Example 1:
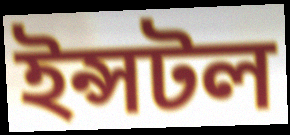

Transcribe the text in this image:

ইন্সটল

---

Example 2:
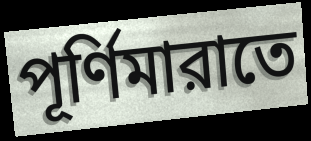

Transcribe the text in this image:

পূর্ণিমারাতে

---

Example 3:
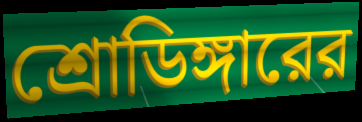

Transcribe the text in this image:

শ্রোডিঙ্গারের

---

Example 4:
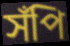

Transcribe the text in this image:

সঁপি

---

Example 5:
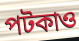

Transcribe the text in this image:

পটকাও